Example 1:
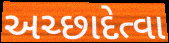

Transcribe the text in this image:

અચ્છાદેત્વા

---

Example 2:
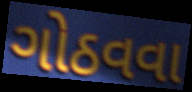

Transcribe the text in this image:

ગોઠવવા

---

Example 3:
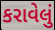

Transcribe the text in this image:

કરાવેલું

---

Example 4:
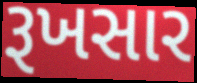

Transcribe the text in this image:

રૂખસાર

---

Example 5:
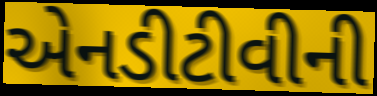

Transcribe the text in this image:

એનડીટીવીની